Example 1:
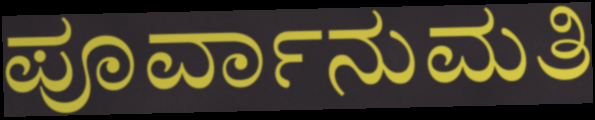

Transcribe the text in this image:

ಪೂರ್ವಾನುಮತಿ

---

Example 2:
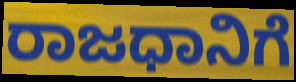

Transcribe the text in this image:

ರಾಜಧಾನಿಗೆ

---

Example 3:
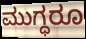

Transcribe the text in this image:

ಮುಗ್ಧರೂ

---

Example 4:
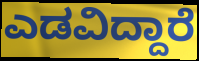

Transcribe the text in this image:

ಎಡವಿದ್ದಾರೆ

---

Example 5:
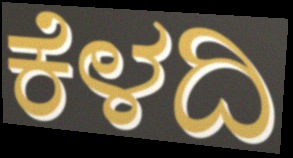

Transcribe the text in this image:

ಕೆಳದಿ